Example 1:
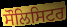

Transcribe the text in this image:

ਸੌਲਿਸਿਟਰ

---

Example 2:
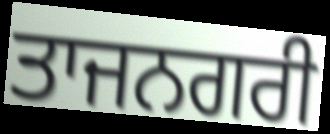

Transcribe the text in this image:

ਤਾਜਨਗਰੀ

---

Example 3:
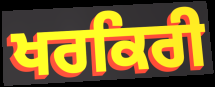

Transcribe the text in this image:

ਖਰਕਿਰੀ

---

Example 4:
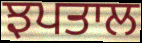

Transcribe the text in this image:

ਝਪਤਾਲ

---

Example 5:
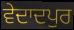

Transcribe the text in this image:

ਵੇਦਾਦਪੁਰ